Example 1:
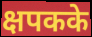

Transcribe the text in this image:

क्षपकके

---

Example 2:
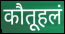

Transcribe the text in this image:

कौतूहलं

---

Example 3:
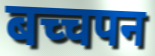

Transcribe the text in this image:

बच्चपन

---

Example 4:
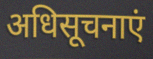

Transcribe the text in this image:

अधिसूचनाएं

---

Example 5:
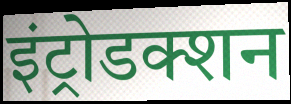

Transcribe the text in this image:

इंट्रोडक्शन